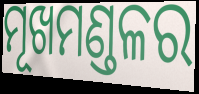
ମୂଖମଣ୍ଡଳର